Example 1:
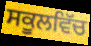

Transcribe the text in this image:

ਸਕੂਲਵਿੱਚ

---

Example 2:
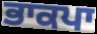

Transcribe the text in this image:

ਭਾਕਪਾ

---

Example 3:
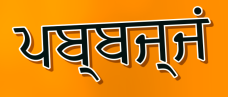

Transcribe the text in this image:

ਪਬ੍ਬਜ੍ਜਂ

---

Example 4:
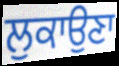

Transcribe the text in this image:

ਲੁਕਾਉਣਾ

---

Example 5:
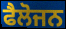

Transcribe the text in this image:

ਫੈਲੋਜਨ